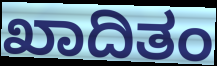
ಖಾದಿತಂ